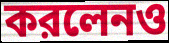
করলেনও